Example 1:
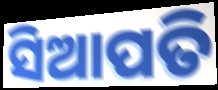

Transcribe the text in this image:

ସିଆପତି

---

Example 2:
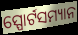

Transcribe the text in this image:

ସ୍ପୋର୍ଟସମ୍ୟାନ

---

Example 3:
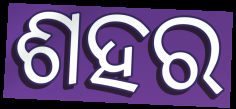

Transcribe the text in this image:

ଶହର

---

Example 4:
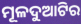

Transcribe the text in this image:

ମୂଳଦୁଆଟିର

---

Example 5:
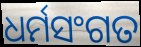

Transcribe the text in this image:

ଧର୍ମସଂଗତ